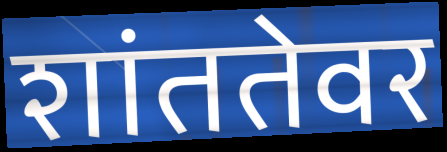
शांततेवर